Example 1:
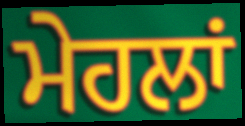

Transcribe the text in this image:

ਮੇਹਲਾਂ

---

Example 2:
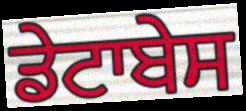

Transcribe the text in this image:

ਡੇਟਾਬੇਸ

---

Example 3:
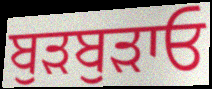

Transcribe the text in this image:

ਬੁੜਬੁੜਾਓ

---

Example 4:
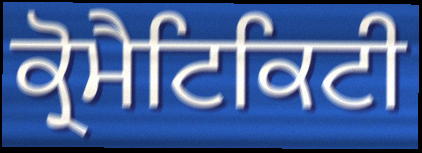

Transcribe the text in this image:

ਕ੍ਰੋਮੈਟਿਕਿਟੀ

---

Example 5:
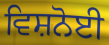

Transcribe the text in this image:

ਵਿਸ਼ਨੋਈ